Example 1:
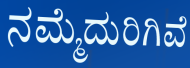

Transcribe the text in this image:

ನಮ್ಮೆದುರಿಗಿವೆ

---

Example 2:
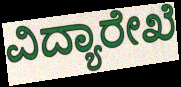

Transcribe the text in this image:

ವಿದ್ಯಾರೇಖೆ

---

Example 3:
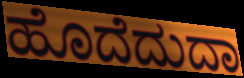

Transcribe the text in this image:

ಹೊದೆದುದಾ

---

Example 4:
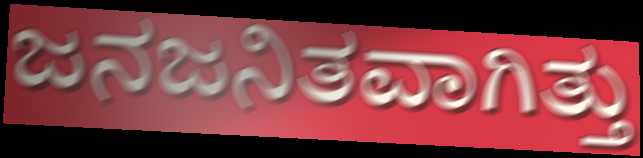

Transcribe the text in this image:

ಜನಜನಿತವಾಗಿತ್ತು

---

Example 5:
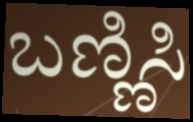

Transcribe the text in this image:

ಬಣ್ಣಿಸಿ